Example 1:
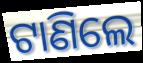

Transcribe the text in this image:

ଟାଣିଲେ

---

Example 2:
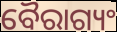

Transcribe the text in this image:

ବୈରାଗ୍ୟଂ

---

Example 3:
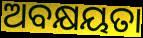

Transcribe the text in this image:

ଅବକ୍ଷୟତା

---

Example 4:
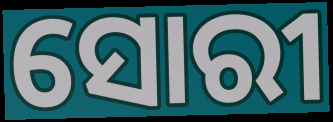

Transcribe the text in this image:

ସୋରୀ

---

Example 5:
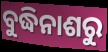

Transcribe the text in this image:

ବୁଦ୍ଧିନାଶରୁ